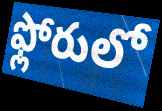
ఫ్లోరులో